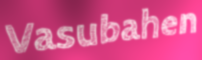
Vasubahen